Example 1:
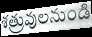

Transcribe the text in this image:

శత్రువులనుండి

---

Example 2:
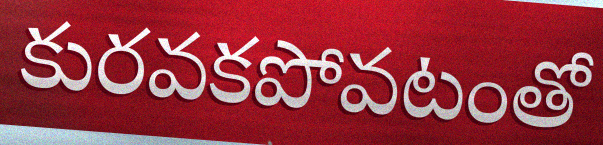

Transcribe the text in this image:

కురవకపోవటంతో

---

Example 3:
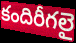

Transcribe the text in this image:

కందిరీగలై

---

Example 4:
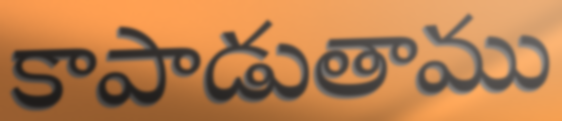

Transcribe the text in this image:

కాపాడుతాము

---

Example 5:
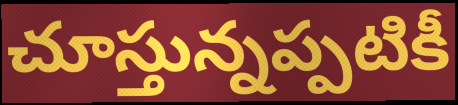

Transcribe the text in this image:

చూస్తున్నప్పటికీ